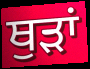
ਥੁੜਾਂ